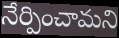
నేర్పించామని